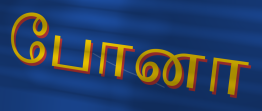
போனா